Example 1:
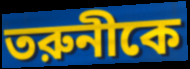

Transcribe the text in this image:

তরুনীকে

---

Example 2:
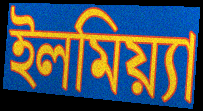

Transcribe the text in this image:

ইলমিয়্যা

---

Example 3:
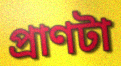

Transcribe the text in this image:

প্রাণটা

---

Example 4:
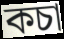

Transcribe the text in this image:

কচা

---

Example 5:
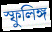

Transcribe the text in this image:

স্ফুলিঙ্গ